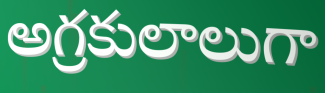
అగ్రకులాలుగా